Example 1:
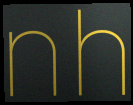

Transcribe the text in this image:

nh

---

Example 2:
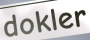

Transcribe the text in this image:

dokler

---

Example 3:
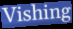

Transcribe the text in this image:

Vishing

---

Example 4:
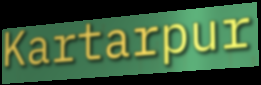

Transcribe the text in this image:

Kartarpur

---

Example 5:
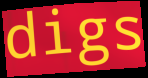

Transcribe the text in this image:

digs